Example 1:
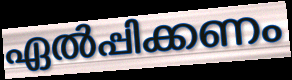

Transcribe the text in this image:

ഏൽപ്പിക്കണം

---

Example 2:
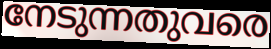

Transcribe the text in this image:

നേടുന്നതുവരെ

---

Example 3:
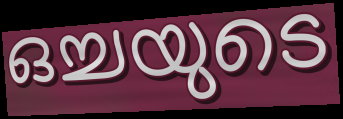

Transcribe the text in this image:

ഒച്ചയുടെ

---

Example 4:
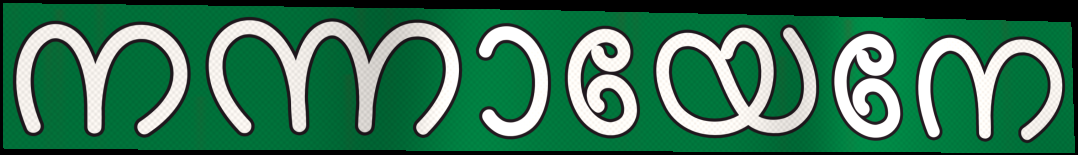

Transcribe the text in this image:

നന്നായേനേ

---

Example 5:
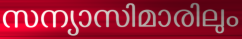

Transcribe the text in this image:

സന്യാസിമാരിലും